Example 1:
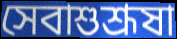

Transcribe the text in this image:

সেবাশুশ্রূষা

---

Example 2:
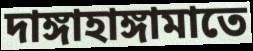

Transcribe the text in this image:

দাঙ্গাহাঙ্গামাতে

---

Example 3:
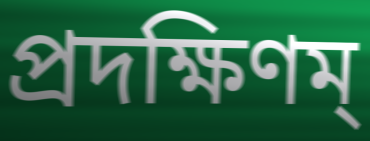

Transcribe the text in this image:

প্রদক্ষিণম্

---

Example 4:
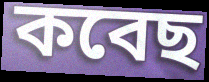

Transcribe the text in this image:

কবেছ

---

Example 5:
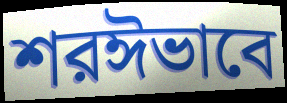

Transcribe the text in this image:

শরঈভাবে